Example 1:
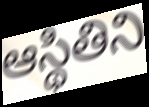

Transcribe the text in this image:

ఆస్థితిని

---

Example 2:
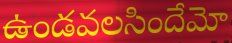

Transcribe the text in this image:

ఉండవలసిందేమో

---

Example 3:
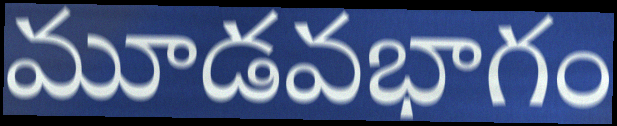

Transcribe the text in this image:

మూడవభాగం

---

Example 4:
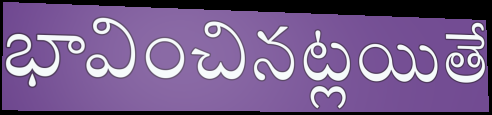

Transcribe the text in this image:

భావించినట్లయితే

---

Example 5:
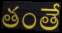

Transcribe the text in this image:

తంతే